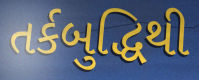
તર્કબુદ્ધિથી